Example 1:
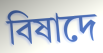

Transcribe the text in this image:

বিষাদে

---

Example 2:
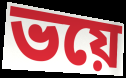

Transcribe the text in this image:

ভয়ে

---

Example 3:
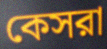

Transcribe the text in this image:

কেসরা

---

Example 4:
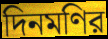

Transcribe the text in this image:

দিনমণির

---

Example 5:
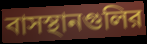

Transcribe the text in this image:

বাসস্থানগুলির